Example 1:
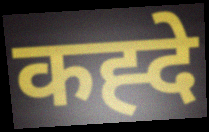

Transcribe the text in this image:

कह्दे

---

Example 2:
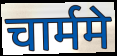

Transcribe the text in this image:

चार्ममे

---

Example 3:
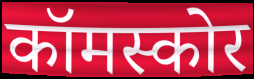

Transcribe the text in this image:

कॉमस्कोर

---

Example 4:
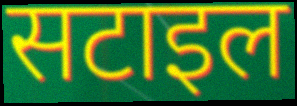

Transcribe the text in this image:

सटाइल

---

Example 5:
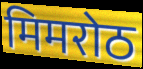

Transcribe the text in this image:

मिमरोठ